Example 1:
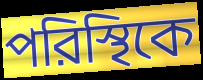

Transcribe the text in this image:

পরিস্থিকে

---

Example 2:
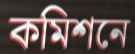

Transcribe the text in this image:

কমিশনে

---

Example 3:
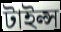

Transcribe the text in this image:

টাইল্স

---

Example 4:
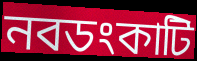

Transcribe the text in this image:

নবডংকাটি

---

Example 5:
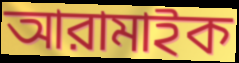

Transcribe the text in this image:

আরামাইক